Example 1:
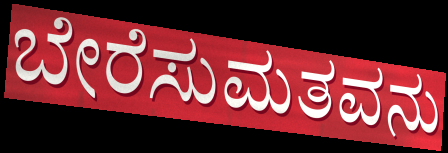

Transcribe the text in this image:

ಬೇರೆಸುಮತವನು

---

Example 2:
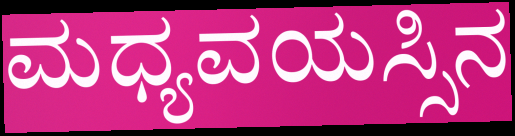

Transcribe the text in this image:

ಮಧ್ಯವಯಸ್ಸಿನ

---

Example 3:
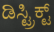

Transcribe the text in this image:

ಡಿಸ್ಟ್ರಿಕ್ಟ್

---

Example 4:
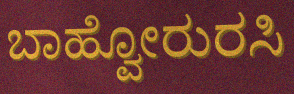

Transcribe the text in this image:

ಬಾಹ್ವೋರುರಸಿ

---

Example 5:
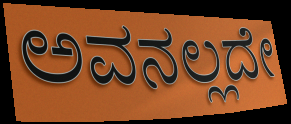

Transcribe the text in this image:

ಅವನಲ್ಲದೇ